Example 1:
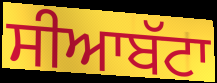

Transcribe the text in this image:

ਸੀਆਬੱਟਾ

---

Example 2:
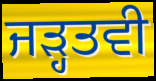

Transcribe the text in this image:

ਜੜ੍ਹਤਵੀ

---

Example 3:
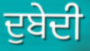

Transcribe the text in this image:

ਦੁਬੇਦੀ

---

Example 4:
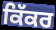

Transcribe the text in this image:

ਕਿੱਕਰ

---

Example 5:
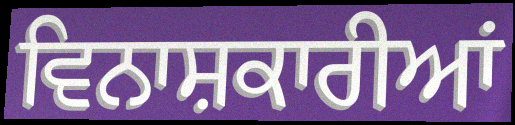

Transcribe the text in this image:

ਵਿਨਾਸ਼ਕਾਰੀਆਂ